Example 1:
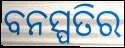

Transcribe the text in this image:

ବନସ୍ପତିର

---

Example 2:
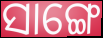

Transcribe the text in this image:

ସାଙ୍ଗେ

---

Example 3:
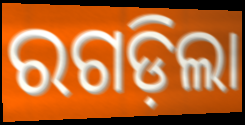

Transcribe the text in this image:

ରଗଡ଼ିଲା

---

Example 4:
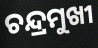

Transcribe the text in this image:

ଚନ୍ଦ୍ରମୁଖୀ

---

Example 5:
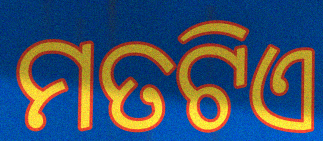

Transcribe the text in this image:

ମତଟିଏ